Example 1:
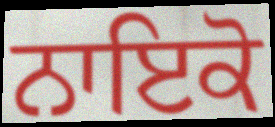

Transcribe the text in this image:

ਨਾਇਕੋ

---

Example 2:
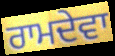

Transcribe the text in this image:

ਰਾਮਦੇਵਾ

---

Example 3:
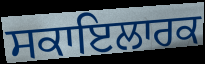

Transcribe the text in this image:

ਸਕਾਇਲਾਰਕ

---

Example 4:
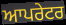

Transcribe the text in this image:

ਆਪਰੇਟਰ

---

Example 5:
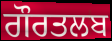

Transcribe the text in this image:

ਗੌਰਤਲਬ